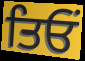
ਤਿਓਂ